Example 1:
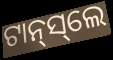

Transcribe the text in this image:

ଟାନ୍‌ସ୍‌ଲେ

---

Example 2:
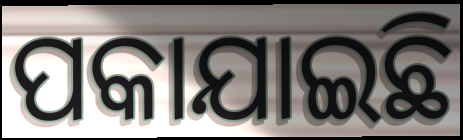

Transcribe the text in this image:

ପକାଯାଇଛି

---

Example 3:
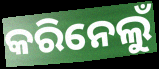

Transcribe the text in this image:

କରିନେଲୁଁ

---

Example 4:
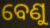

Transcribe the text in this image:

ବେଣୁ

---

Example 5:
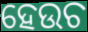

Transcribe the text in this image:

ହେଉଚ